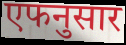
एफनुसार